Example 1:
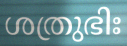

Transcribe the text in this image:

ശത്രുഭിഃ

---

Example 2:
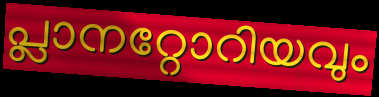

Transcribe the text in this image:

പ്ലാനറ്റോറിയവും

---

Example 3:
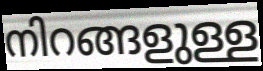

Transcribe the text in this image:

നിറങ്ങളുള്ള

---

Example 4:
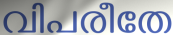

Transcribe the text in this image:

വിപരീതേ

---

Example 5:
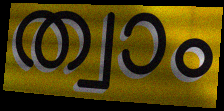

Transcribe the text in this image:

ത്വാം